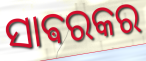
ସାଵରକର